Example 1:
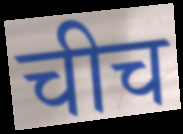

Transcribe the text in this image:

चीच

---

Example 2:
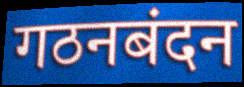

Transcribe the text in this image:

गठनबंदन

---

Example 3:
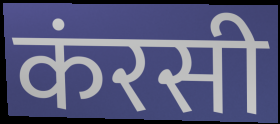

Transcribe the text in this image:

कंरसी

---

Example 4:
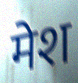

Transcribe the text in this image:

मेश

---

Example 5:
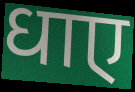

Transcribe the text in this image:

धाए